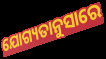
ଯୋଗ୍ୟତାନୁସାରେ